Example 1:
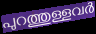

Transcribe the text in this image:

പുറത്തുള്ളവർ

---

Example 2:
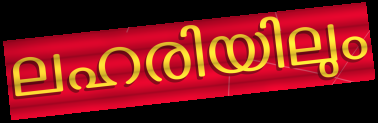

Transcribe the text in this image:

ലഹരിയിലും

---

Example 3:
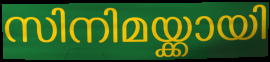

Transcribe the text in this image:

സിനിമയ്ക്കായി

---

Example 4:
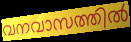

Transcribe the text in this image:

വനവാസത്തിൽ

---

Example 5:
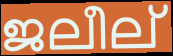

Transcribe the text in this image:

ജലീല്